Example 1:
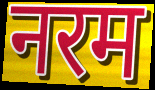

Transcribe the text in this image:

नरम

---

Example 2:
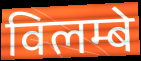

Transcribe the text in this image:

विलम्बे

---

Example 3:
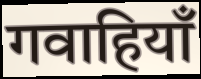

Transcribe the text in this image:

गवाहियाँ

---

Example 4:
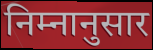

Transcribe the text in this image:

निम्‍नानुसार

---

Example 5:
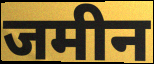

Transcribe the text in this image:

जमीन